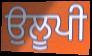
ਉਲੂਪੀ